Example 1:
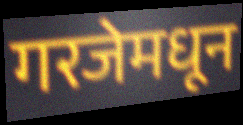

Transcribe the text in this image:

गरजेमधून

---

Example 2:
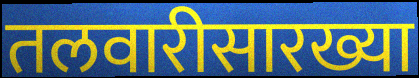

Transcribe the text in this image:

तलवारीसारख्या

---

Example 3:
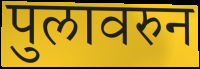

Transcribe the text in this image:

पुलावरुन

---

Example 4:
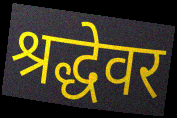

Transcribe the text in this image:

श्रद्धेवर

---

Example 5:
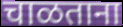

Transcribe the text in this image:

चाळताना